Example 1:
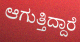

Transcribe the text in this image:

ಆಗುತ್ತಿದ್ದಾರೆ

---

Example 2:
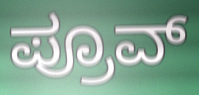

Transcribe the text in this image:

ಪ್ರೂವ್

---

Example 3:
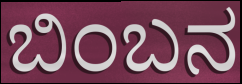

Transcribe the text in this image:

ಬಿಂಬನ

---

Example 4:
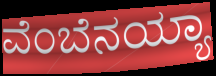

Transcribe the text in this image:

ವೆಂಬೆನಯ್ಯಾ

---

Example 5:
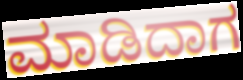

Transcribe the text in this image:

ಮಾಡಿದಾಗ